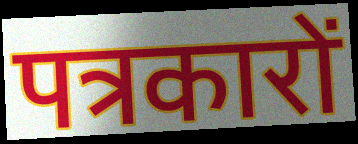
पत्रकारों